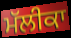
ਮੱਲੀਕਾ